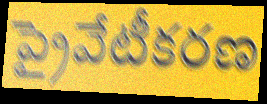
ప్రైవేటీకరణ